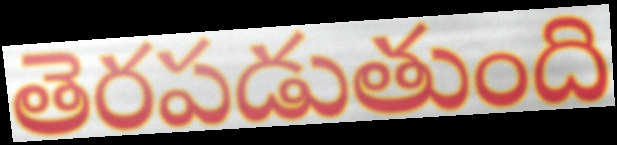
తెరపడుతుంది